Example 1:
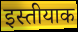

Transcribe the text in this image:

इस्तीयाक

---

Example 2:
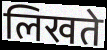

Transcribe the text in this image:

लिखते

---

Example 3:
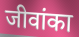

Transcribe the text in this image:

जीवांका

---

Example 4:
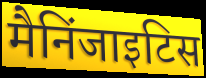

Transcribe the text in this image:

मैनिंजाइटिस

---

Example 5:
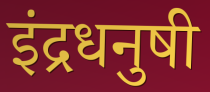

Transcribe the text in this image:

इंद्रधनुषी